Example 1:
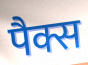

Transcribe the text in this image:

पैक्स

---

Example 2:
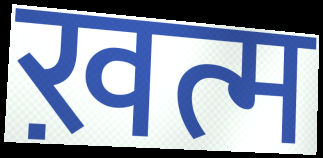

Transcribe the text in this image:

ख़त्म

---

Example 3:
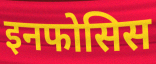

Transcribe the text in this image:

इनफोसिस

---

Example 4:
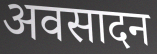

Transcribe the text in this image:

अवसादन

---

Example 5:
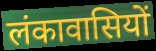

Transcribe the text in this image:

लंकावासियों